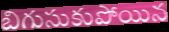
బిగుసుకుపోయిన